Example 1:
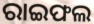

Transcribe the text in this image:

ରାଇଫଲ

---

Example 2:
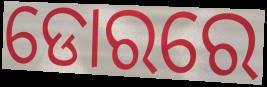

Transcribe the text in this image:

ଡୋରରେ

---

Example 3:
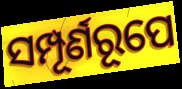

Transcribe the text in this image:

ସମ୍ପୂର୍ଣରୂପେ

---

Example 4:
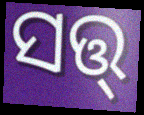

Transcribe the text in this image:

ସତ୍ତ୍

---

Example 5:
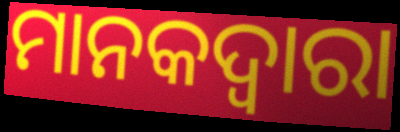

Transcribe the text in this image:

ମାନକଦ୍ୱାରା